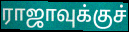
ராஜாவுக்குச்